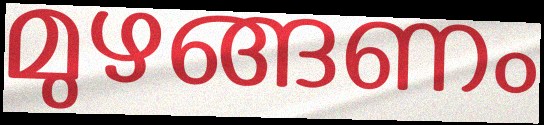
മുഴങ്ങണം